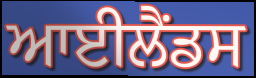
ਆਈਲੈਂਡਸ